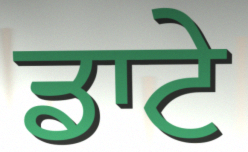
ਡਾਟੇ